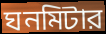
ঘনমিটার